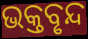
ଭକ୍ତବୃନ୍ଦ